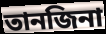
তানজিনা